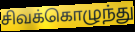
சிவக்கொழுந்து